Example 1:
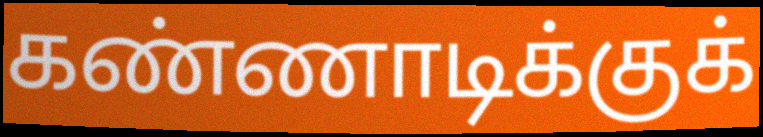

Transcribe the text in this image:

கண்ணாடிக்குக்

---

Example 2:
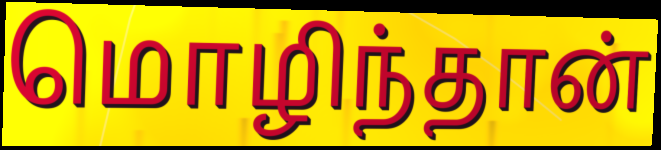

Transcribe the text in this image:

மொழிந்தான்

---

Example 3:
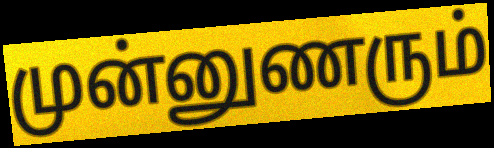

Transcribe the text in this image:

முன்னுணரும்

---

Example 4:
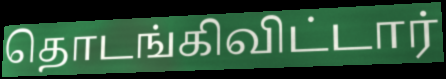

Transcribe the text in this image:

தொடங்கிவிட்டார்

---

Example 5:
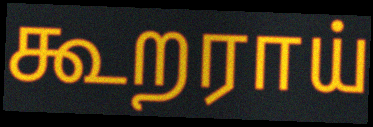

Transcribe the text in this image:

கூறராய்